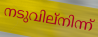
നടുവില്നിന്ന്